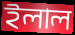
ইলাল